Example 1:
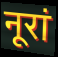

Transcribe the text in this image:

नूरां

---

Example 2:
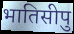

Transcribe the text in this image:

भातिसीपु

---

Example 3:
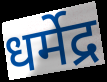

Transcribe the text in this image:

धर्मेद्र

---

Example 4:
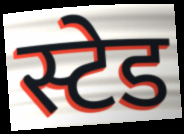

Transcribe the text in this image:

स्टेड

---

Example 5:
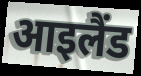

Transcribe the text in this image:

आइलैंड